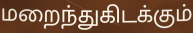
மறைந்துகிடக்கும்